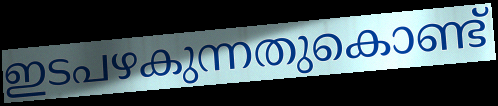
ഇടപഴകുന്നതുകൊണ്ട്